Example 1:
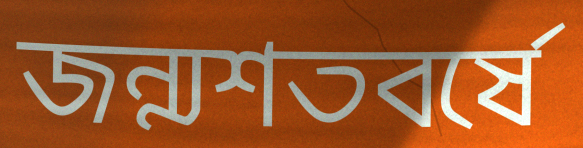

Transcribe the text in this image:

জন্মশতবর্ষে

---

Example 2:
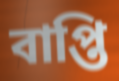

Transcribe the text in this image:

বাপ্তি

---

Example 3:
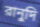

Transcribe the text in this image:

রানুদি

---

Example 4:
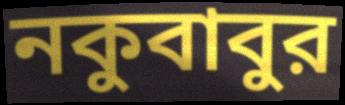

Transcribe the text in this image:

নকুবাবুর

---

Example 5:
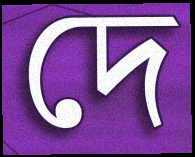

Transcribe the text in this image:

দে